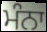
ਮੰਨਾ